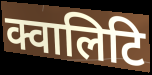
क्वालिटि